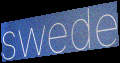
swede